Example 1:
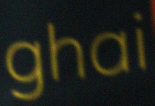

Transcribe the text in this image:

ghai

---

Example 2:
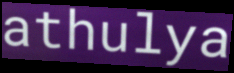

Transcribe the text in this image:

athulya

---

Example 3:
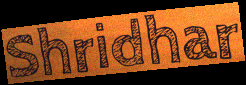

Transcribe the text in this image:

Shridhar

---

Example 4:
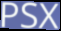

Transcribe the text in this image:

PSX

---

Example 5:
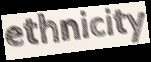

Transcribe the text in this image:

ethnicity